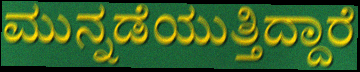
ಮುನ್ನಡೆಯುತ್ತಿದ್ದಾರೆ